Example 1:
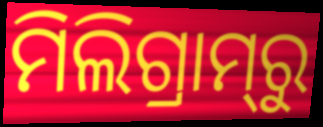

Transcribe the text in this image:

ମିଲିଗ୍ରାମ୍‌ରୁ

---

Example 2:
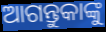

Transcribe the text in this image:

ଆଗନ୍ତୁକାଙ୍କୁ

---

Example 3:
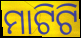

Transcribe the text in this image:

ମାଟିଟି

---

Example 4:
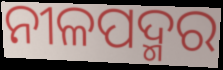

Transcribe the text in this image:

ନୀଳପଦ୍ମର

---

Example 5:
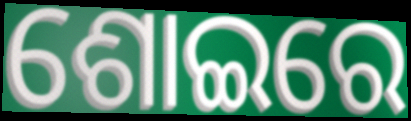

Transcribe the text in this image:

ଶୋଇରେ